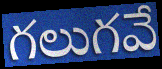
గలుగవే